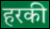
हरकी